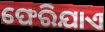
ଫେରିଯାଏ